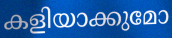
കളിയാക്കുമോ